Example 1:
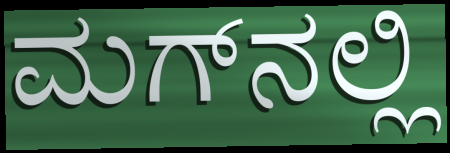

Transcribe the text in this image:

ಮಗ್‌ನಲ್ಲಿ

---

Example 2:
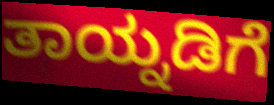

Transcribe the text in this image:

ತಾಯ್ನಡಿಗೆ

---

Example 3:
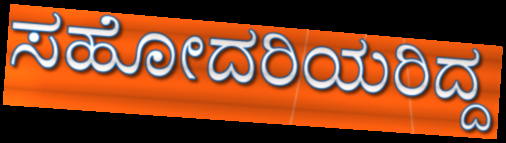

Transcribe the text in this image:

ಸಹೋದರಿಯರಿದ್ದ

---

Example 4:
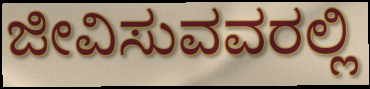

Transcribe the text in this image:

ಜೀವಿಸುವವರಲ್ಲಿ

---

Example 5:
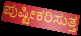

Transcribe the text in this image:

ಪುಷ್ಟೀಕರಿಸುತ್ತ